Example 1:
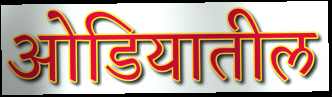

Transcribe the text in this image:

ओडियातील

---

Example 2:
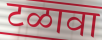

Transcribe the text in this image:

टळावा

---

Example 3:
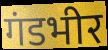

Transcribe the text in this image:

गंडभीर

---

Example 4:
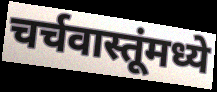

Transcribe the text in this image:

चर्चवास्तूंमध्ये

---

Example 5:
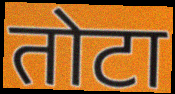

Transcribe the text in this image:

तोटा